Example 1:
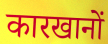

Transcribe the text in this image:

कारखानों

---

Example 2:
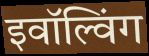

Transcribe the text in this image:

इवॉल्विंग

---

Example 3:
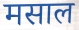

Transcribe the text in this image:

मसाल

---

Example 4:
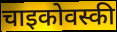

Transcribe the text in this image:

चाइकोवस्की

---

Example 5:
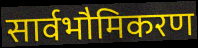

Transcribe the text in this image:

सार्वभौमिकरण